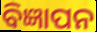
ବିଜ୍ଞାପନ